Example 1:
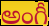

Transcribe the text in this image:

అంగీ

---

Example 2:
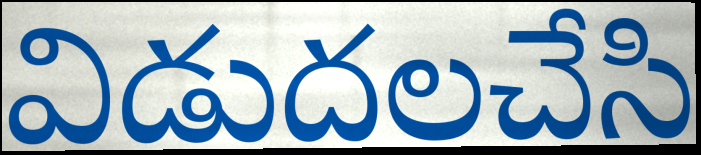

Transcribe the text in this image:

విడుదలచేసి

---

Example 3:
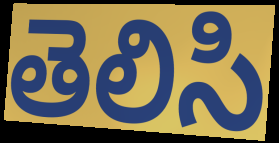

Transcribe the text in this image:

తెలిసి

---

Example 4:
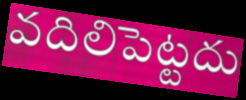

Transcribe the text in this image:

వదిలిపెట్టదు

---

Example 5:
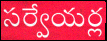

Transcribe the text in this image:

సర్వేయర్ల